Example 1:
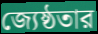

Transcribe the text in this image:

জ্যেষ্ঠতার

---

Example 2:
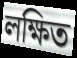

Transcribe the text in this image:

লক্ষিত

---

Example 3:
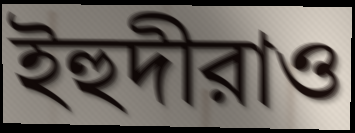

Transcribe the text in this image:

ইহুদীরাও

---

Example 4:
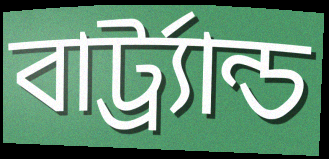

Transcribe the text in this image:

বার্ট্র্যান্ড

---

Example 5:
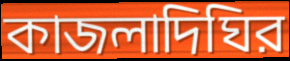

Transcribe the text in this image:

কাজলাদিঘির